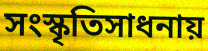
সংস্কৃতিসাধনায়